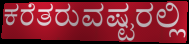
ಕರೆತರುವಷ್ಟರಲ್ಲಿ